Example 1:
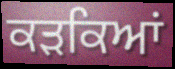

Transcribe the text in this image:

ਕੜਕਿਆਂ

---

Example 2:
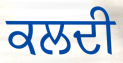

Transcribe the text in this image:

ਕਲਦੀ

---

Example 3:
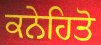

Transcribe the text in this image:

ਕਨੇਹਿਤੋ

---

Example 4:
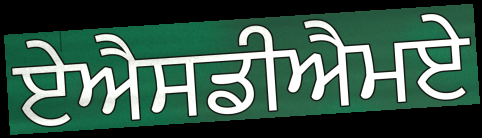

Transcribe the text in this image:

ਏਐਸਡੀਐਮਏ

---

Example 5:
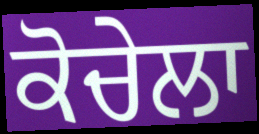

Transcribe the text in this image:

ਕੋਚੇਲਾ